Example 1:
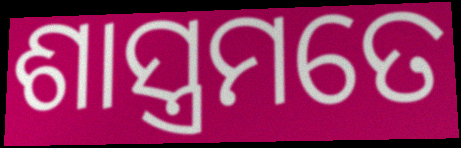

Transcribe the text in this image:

ଶାସ୍ତ୍ରମତେ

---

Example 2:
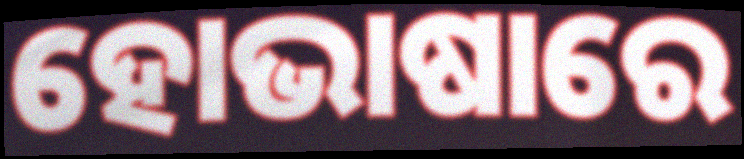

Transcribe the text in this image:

ହୋଭାଷାରେ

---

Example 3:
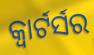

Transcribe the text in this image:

କ୍ବାର୍ଟର୍ସର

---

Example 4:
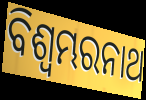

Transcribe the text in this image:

ବିଶ୍ୱମ୍ଭରନାଥ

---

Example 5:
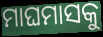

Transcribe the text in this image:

ମାଘମାସକୁ